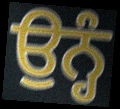
ਉਨ੍ਹੰ